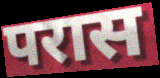
परास